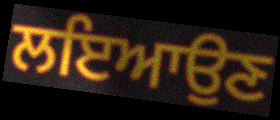
ਲਇਆਉਣ